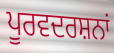
ਪੂਰਵਦਰਸ਼ਨਾਂ